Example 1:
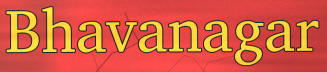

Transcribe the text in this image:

Bhavanagar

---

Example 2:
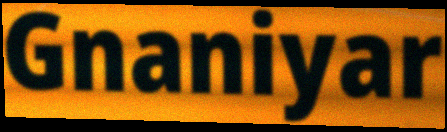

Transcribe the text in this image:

Gnaniyar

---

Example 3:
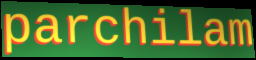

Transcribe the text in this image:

parchilam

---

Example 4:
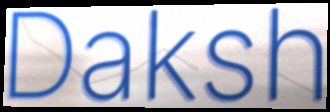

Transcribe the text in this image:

Daksh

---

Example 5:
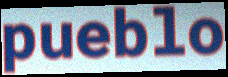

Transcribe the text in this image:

pueblo